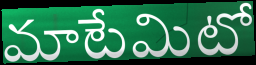
మాటేమిటో